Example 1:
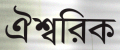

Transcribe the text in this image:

ঐশ্বরিক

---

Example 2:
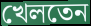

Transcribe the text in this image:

খেলতেন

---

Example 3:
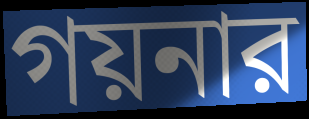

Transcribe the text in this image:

গয়নার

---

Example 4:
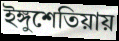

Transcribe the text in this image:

ইঙ্গুশেতিয়ায়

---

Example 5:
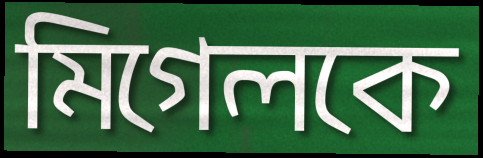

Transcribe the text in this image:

মিগেলকে